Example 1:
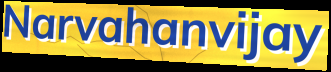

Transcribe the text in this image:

Narvahanvijay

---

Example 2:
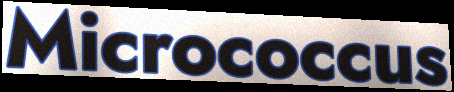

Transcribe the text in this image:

Micrococcus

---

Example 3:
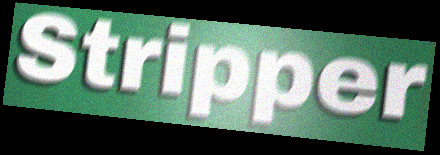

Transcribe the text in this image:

Stripper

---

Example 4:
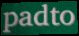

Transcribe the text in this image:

padto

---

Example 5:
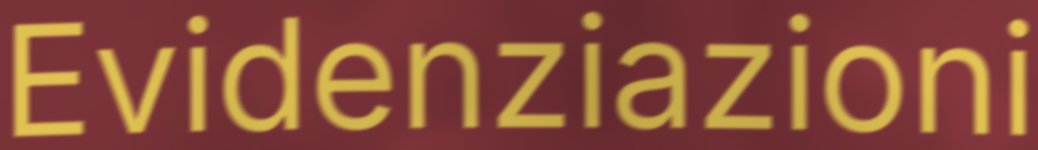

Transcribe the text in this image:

Evidenziazioni